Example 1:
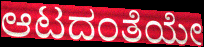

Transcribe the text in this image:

ಆಟದಂತೆಯೇ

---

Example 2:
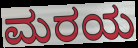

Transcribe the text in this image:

ಮರಯ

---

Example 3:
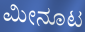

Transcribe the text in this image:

ಮೀನೂಟ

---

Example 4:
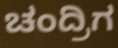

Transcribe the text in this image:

ಚಂದ್ರಿಗ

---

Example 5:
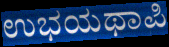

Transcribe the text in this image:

ಉಭಯಥಾಪಿ